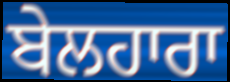
ਬੇਲਹਾਰਾ